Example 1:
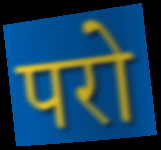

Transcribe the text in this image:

परो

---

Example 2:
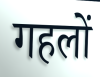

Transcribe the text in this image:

गहलों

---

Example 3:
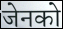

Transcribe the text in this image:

जेनको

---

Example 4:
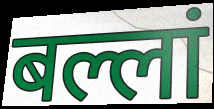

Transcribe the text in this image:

बल्लां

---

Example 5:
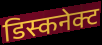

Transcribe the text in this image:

डिस्कनेक्ट